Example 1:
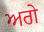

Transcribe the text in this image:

ਅਗੇ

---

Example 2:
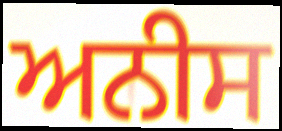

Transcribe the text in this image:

ਅਨੀਸ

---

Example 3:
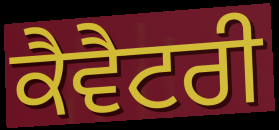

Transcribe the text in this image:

ਕੈਵੈਟਰੀ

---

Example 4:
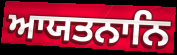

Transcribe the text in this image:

ਆਯਤਨਾਨਿ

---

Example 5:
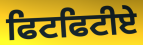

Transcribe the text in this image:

ਫਿਟਫਿਟੀਏ